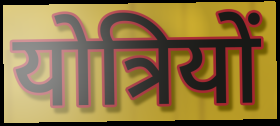
योत्रियों